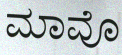
ಮಾವೊ